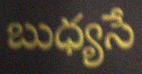
బుధ్యసే